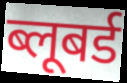
ब्लूबर्ड